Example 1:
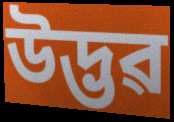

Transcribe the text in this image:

উদ্ভৱ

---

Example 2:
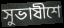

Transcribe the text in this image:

সুভাষীশে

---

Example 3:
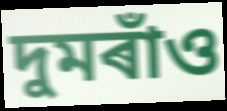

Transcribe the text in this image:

দুমৰাঁও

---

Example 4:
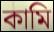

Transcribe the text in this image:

কামি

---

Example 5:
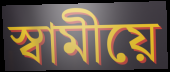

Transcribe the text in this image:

স্বামীয়ে